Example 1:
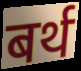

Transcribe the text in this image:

बर्थ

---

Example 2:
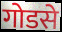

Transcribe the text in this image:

गोडसे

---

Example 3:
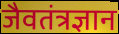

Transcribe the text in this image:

जैवतंत्रज्ञान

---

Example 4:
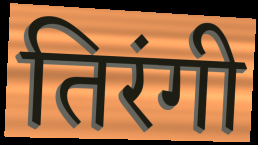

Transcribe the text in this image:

तिरंगी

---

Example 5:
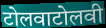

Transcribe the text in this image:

टोलवाटोलवी